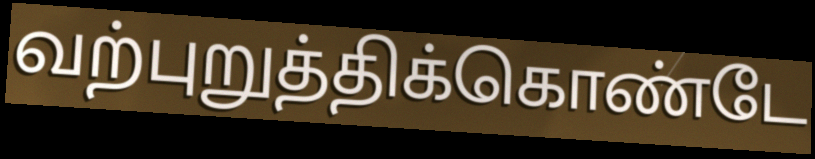
வற்புறுத்திக்கொண்டே